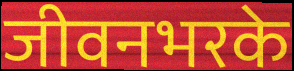
जीवनभरके